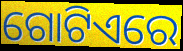
ଗୋଟିଏରେ